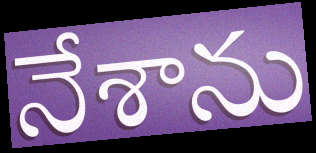
నేశాను